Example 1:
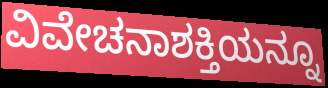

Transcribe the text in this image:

ವಿವೇಚನಾಶಕ್ತಿಯನ್ನೂ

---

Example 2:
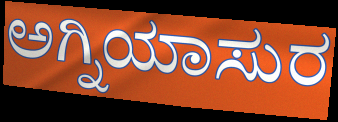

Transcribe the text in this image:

ಅಗ್ನಿಯಾಸುರ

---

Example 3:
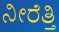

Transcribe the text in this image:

ನೀರೆತ್ತಿ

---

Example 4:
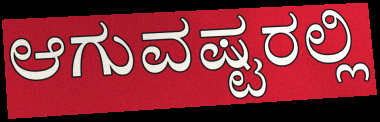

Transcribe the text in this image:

ಆಗುವಷ್ಟರಲ್ಲಿ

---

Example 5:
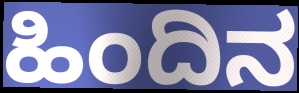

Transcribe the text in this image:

ಹಿಂದಿನ